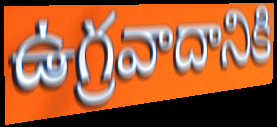
ఉగ్రవాదానికి